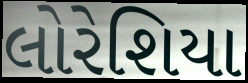
લોરેશિયા